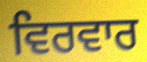
ਵਿਰਵਾਰ